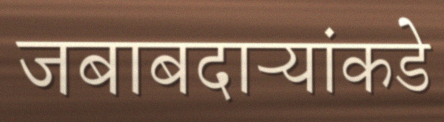
जबाबदाऱ्यांकडे